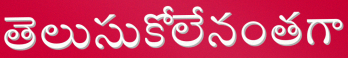
తెలుసుకోలేనంతగా